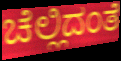
ಚೆಲ್ಲಿದಂತೆ